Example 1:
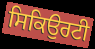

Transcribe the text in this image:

ਸਿਕਿਉਰਟੀ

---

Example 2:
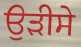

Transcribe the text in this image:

ਉੜੀਸੇ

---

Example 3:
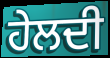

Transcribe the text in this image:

ਹੇਲਦੀ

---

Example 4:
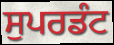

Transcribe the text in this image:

ਸੁਪਰਡੰਟ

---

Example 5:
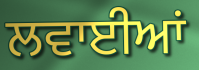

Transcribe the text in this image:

ਲਵਾਈਆਂ